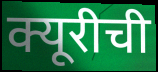
क्यूरीची